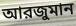
আরজুমান